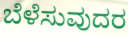
ಬೆಳೆಸುವುದರ